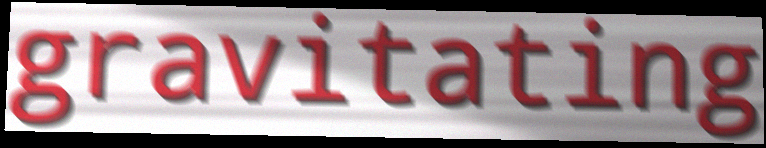
gravitating